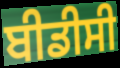
ਬੀਡੀਸੀ